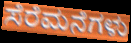
ಸೆರೆಮನೆಗಳು